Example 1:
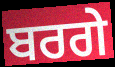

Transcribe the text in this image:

ਬਰਗੇ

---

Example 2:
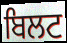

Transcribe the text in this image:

ਬਿਲਟ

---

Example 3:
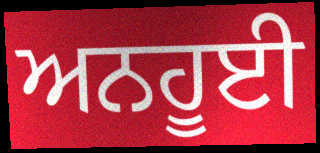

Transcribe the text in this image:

ਅਨਹੂਈ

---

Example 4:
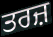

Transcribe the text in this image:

ਤਰਜ਼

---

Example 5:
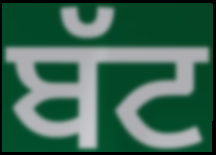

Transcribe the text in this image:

ਬੱਟ